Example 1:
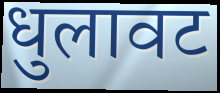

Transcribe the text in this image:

धुलावट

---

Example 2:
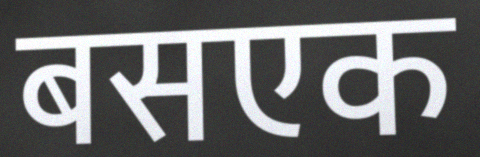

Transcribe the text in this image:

बसएक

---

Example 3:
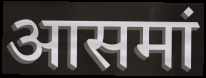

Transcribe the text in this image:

आसमां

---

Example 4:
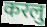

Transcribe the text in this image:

करलु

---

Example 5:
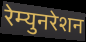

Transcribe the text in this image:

रेम्युनरेशन